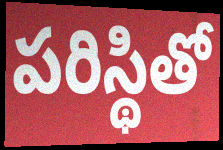
పరిస్థితో